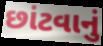
છાંટવાનું